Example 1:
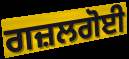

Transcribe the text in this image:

ਗਜ਼ਲਗੋਈ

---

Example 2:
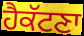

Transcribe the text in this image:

ਹੈਕੱਟਣਾ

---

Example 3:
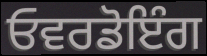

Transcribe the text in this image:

ਓਵਰਡੋਇੰਗ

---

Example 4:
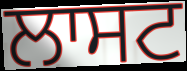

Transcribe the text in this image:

ਲਾਸਟ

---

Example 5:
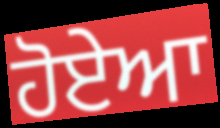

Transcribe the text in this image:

ਹੋਏਆ